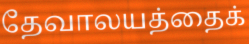
தேவாலயத்தைக்